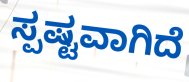
ಸ್ಪಷ್ಟವಾಗಿದೆ